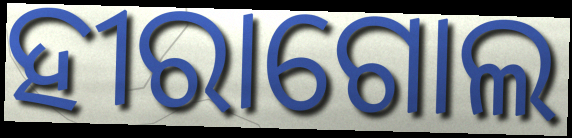
ହୀରାଗୋଲ